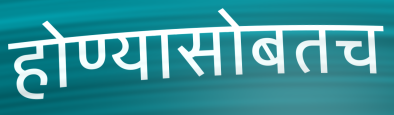
होण्यासोबतच